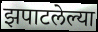
झपाटलेल्या